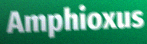
Amphioxus